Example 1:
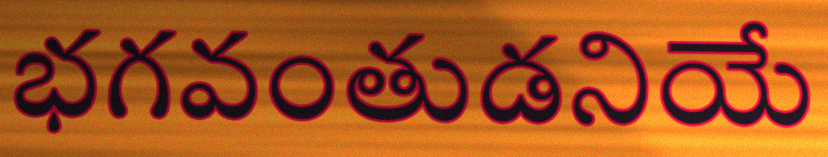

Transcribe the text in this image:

భగవంతుడనియే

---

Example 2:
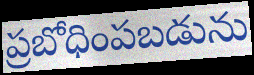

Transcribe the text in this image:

ప్రబోధింపబడును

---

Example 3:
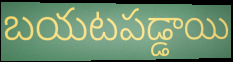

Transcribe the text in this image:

బయటపడ్డాయి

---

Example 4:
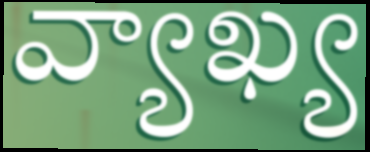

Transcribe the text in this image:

వ్యాఖ్య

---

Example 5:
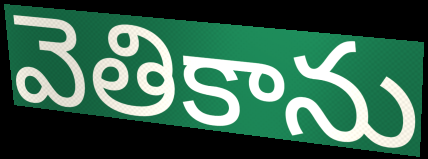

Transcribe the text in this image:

వెతికాను